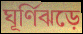
ঘূর্ণিঝড়ে